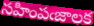
సహింపఁజాలక